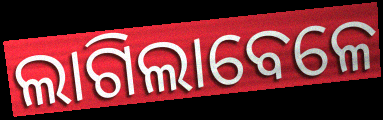
ଲାଗିଲାବେଳେ